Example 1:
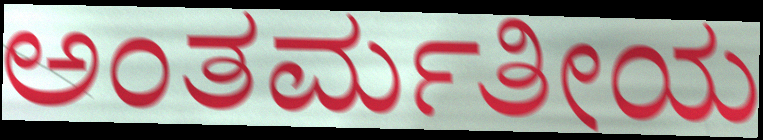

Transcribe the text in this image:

ಅಂತರ್ಮತೀಯ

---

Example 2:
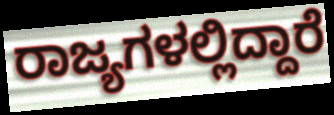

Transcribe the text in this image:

ರಾಜ್ಯಗಳಲ್ಲಿದ್ದಾರೆ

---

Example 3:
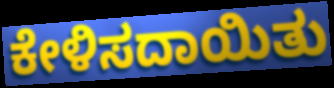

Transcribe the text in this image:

ಕೇಳಿಸದಾಯಿತು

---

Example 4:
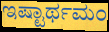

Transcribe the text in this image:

ಇಷ್ಟಾರ್ಥಮಂ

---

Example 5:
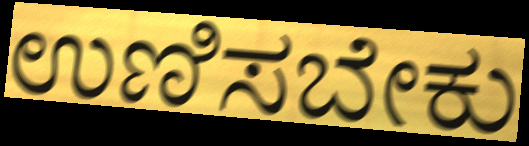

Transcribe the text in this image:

ಉಣಿಸಬೇಕು